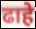
ढाहे